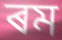
ৰম